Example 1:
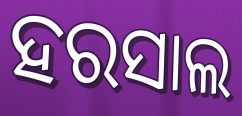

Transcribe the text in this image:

ହରସାଲ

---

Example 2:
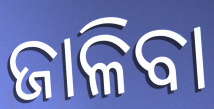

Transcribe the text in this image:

ଜାଳିବା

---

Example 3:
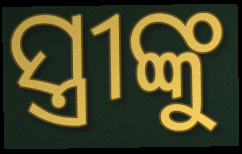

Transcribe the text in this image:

ସ୍ତ୍ରୀଙ୍କୁ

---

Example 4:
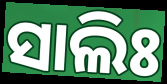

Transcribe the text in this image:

ସାଲିଃ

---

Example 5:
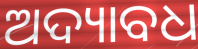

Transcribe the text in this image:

ଅଦ୍ୟାବଧ